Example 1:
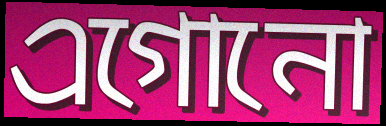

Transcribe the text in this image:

এগোনো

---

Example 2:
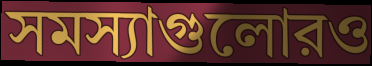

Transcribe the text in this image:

সমস্যাগুলোরও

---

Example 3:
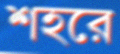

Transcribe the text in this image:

শহরে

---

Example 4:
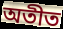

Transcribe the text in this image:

অতীত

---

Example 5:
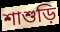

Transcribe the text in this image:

শাশুড়ি